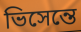
ভিসেন্তে